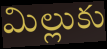
మిల్లుకు